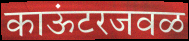
काऊंटरजवळ